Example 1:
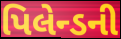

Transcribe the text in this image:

પિલેન્ડની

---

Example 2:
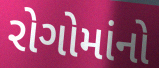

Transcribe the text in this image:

રોગોમાંનો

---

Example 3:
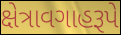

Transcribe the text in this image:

ક્ષેત્રાવગાહરૂપે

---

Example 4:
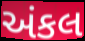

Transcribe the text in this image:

અંકલ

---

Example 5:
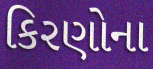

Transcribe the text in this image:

કિરણોના